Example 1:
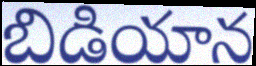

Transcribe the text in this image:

బిడియాన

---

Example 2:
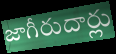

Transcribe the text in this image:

జాగీరుదార్లు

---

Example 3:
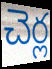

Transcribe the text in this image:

చెర్ల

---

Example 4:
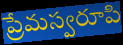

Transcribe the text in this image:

ప్రేమస్వరూపి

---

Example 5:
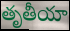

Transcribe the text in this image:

తృతీయా